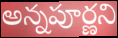
అన్నపూర్ణని